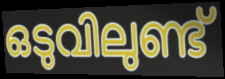
ഒടുവിലുണ്ട്